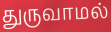
துருவாமல்